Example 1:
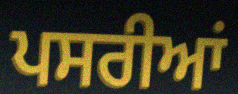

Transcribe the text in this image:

ਪਸਰੀਆਂ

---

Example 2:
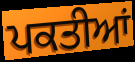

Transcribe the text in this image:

ਪਕਤੀਆਂ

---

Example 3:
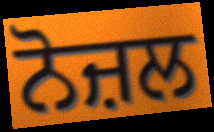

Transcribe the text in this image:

ਨੋਜ਼ਲ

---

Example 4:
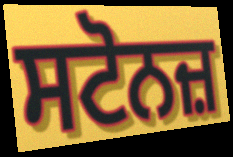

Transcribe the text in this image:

ਸਟੋਨਜ਼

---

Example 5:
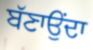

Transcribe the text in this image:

ਬੱਣਾਉਂਦਾ